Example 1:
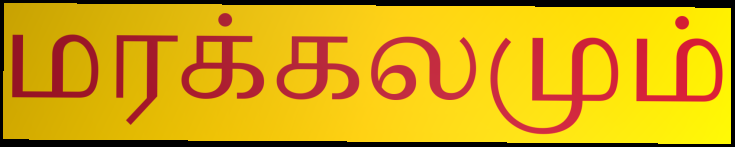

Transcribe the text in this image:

மரக்கலமும்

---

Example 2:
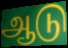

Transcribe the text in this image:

ஆடு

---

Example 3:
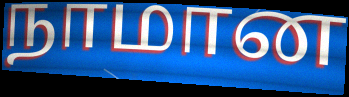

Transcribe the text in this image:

நாமான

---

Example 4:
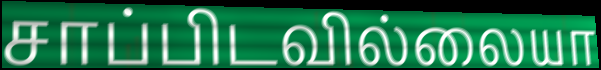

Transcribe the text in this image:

சாப்பிடவில்லையா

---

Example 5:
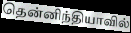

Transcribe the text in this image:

தென்னிந்தியாவில்